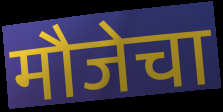
मौजेचा